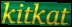
kitkat